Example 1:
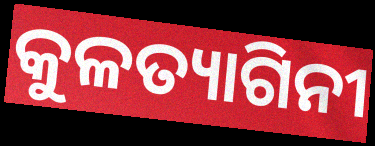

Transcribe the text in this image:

କୁଳତ୍ୟାଗିନୀ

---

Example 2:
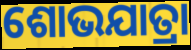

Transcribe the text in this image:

ଶୋଭଯାତ୍ରା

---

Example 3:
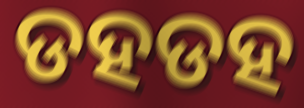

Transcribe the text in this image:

ଡହଡହ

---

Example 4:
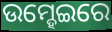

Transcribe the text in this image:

ଉମ୍ହେଇରେ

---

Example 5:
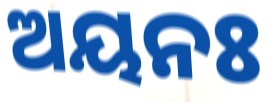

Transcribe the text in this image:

ଅୟନଃ